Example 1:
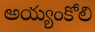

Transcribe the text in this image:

అయ్యంకోలి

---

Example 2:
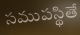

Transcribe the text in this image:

సముపస్థితే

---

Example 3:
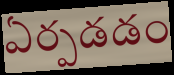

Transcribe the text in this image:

ఏర్పడడం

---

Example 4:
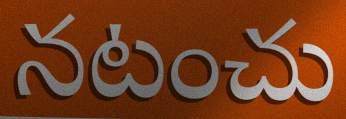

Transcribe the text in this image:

నటంచు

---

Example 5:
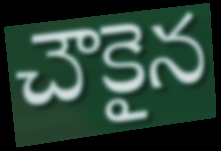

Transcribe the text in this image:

చౌకైన